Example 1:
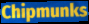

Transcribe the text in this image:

Chipmunks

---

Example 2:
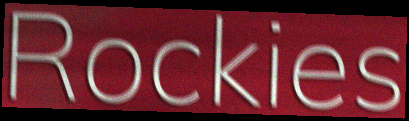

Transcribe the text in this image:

Rockies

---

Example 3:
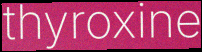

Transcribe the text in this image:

thyroxine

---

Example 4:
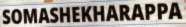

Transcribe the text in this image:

SOMASHEKHARAPPA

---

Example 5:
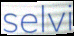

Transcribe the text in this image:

selvi